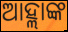
ଆହ୍ଲାଙ୍କ